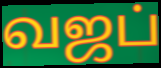
வஜப்